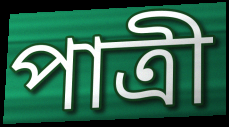
পাত্ৰী